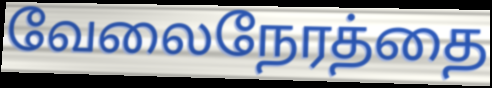
வேலைநேரத்தை